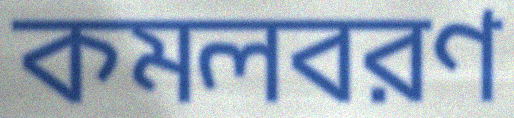
কমলবরণ